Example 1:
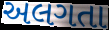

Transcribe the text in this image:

અલગતા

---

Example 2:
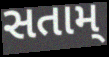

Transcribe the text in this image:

સતામ્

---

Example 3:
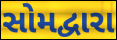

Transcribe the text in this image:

સોમદ્વારા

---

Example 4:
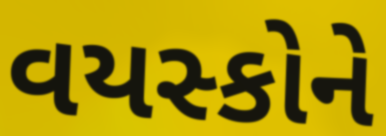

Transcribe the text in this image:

વયસ્કોને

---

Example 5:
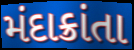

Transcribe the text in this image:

મંદાક્રાંતા